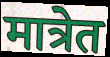
मात्रेत